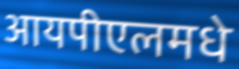
आयपीएलमधे